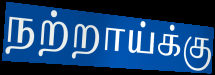
நற்றாய்க்கு